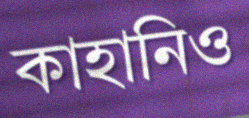
কাহানিও